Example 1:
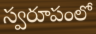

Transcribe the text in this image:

స్వరూపంలో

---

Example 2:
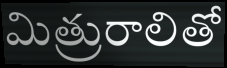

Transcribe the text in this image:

మిత్రురాలితో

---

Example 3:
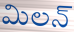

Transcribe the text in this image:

మిలన్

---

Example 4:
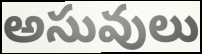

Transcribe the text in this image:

అసువులు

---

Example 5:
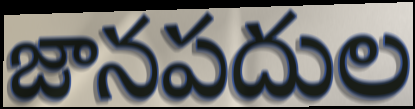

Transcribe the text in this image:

జానపదుల